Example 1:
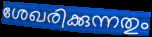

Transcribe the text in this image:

ശേഖരിക്കുന്നതും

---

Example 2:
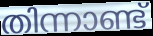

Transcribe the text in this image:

തിന്നാണ്ട്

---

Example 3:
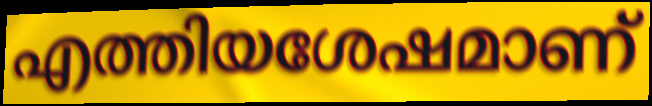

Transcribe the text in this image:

എത്തിയശേഷമാണ്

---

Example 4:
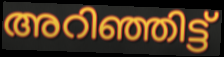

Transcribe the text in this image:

അറിഞ്ഞിട്ട്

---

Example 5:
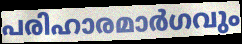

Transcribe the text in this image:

പരിഹാരമാർഗവും